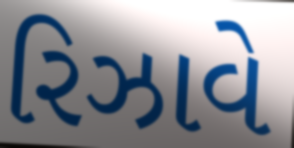
રિઝાવે